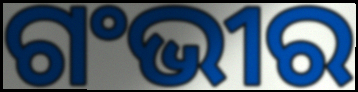
ଗଂଭୀର